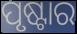
ପୃଷ୍ଟାର